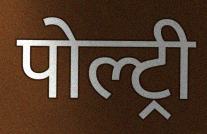
पोल्ट्री